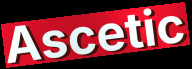
Ascetic